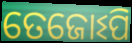
ତେଜୋଽପି